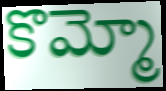
కొమ్మో